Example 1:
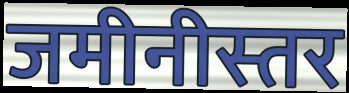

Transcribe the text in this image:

जमीनीस्तर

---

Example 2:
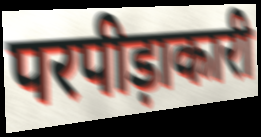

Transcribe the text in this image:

परपीड़ाकारी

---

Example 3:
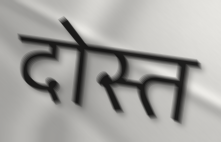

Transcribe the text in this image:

दोस्‍त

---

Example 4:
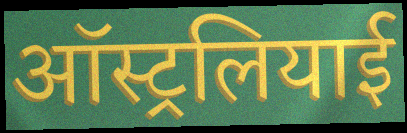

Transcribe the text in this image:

ऑस्ट्रलियाई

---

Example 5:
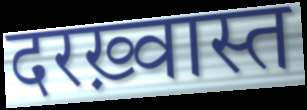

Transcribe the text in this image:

दरख़्वास्त